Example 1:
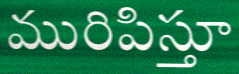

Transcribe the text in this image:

మురిపిస్తూ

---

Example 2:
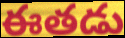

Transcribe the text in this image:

ఈతడు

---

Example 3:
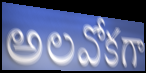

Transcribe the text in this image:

అలవోకగా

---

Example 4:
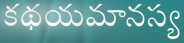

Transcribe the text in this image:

కథయమానస్య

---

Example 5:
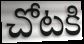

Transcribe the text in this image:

చోటకి